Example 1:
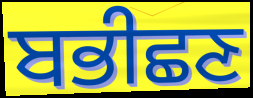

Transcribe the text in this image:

ਬਭੀਛਣ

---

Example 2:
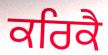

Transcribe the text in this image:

ਕਰਿਕੈ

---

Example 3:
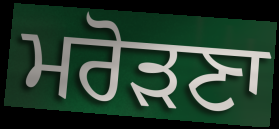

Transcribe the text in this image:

ਮਰੋੜਣਾ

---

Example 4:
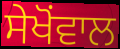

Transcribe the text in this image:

ਸੇਖੋਂਵਾਲ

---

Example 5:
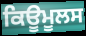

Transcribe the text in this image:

ਕਿਊਮੂਲਸ